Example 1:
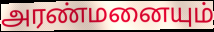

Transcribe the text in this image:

அரண்மனையும்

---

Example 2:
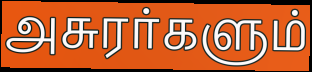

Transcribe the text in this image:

அசுரர்களும்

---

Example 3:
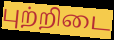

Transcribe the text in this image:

புற்றிடை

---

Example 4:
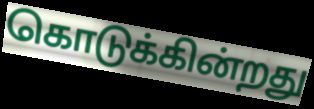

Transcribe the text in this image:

கொடுக்கின்றது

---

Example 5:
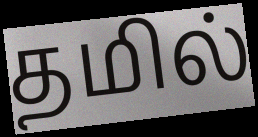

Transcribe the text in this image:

தமில்